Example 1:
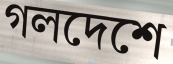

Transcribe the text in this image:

গলদেশে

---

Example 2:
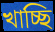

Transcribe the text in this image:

খাচ্ছি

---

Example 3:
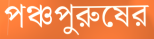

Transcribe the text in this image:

পঞ্চপুরুষের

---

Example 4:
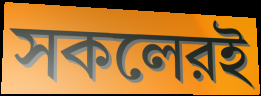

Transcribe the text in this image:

সকলেরই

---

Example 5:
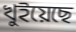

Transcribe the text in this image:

খুইয়েছে